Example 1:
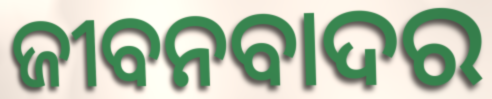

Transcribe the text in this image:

ଜୀବନବାଦର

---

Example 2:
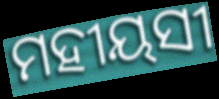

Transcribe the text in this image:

ମହୀୟସୀ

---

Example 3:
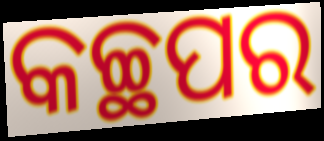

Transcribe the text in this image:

କଚ୍ଛପର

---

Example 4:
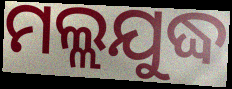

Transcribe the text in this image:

ମଲ୍ଲଯୁଦ୍ଧ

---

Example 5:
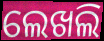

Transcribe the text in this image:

ଲେଖଲି